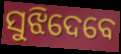
ସୁଝିଦେବେ